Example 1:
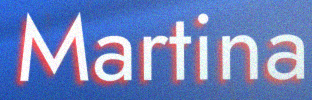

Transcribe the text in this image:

Martina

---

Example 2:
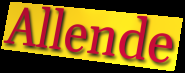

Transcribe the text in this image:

Allende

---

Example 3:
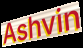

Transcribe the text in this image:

Ashvin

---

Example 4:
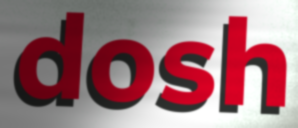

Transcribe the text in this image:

dosh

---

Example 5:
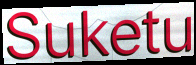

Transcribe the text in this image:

Suketu